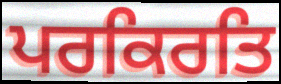
ਪਰਕਿਰਤਿ